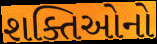
શક્તિઓનો